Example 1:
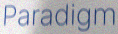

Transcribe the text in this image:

Paradigm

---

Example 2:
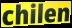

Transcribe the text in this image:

chilen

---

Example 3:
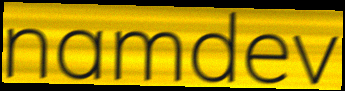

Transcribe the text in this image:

namdev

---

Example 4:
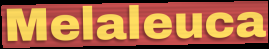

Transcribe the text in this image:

Melaleuca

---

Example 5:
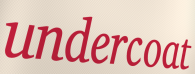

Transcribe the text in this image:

undercoat